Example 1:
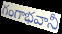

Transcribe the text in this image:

గంగాభవానీ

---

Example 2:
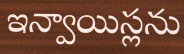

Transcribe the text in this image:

ఇన్వాయిస్లను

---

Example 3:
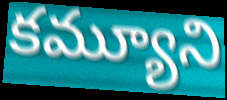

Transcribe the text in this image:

కమ్యూని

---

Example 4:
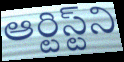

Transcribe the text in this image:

ఆర్టిస్ట్‌ని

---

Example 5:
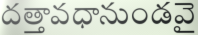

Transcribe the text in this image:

దత్తావధానుండవై